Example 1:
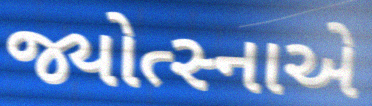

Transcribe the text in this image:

જ્યોત્સ્નાએ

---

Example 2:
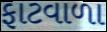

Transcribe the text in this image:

ફાટવાળા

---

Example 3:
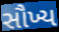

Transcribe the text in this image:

સૌખ્ય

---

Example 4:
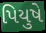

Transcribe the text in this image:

પિયુષે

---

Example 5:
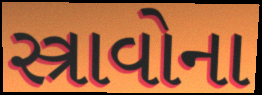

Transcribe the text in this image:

સ્ત્રાવોના